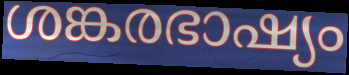
ശങ്കരഭാഷ്യം